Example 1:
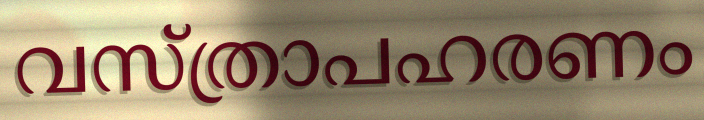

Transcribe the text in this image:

വസ്ത്രാപഹരണം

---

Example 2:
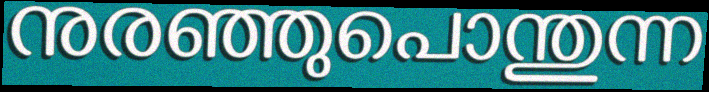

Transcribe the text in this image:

നുരഞ്ഞുപൊന്തുന്ന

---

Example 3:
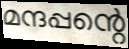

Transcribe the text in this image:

മന്ദപ്പന്റെ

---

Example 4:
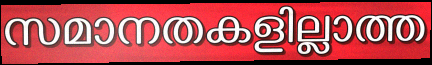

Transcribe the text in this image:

സമാനതകളില്ലാത്ത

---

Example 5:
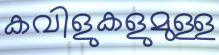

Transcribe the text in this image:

കവിളുകളുമുള്ള